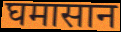
घमासान